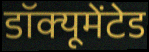
डॉक्यूमेंटेड